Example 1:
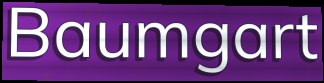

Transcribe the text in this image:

Baumgart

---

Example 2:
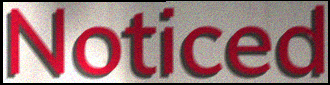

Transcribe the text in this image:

Noticed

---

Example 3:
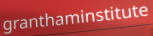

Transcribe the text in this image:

granthaminstitute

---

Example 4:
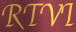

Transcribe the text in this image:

RTVI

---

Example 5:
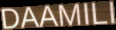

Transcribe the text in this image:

DAAMILI